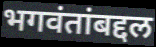
भगवंतांबद्दल